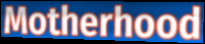
Motherhood